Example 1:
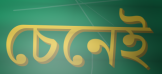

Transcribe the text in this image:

চেনেই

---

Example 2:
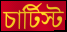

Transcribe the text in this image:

চার্টিস্ট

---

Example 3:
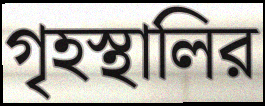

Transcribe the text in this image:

গৃহস্থালির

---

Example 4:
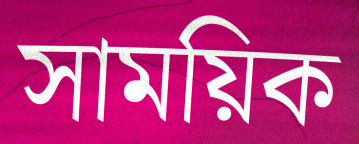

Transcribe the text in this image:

সাময়িক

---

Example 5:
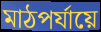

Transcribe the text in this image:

মাঠপর্যায়ে